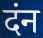
दंन